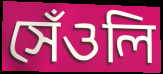
সেঁওলি